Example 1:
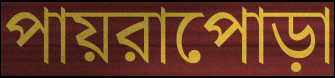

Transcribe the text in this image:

পায়রাপোড়া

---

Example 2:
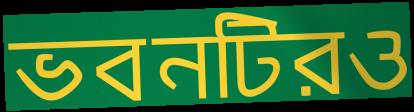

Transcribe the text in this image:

ভবনটিরও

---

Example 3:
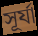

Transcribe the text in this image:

সূর্যা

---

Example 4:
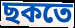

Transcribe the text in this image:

ছকতে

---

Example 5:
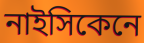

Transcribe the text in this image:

নাইসিকেনে